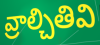
వ్రాల్చితివి